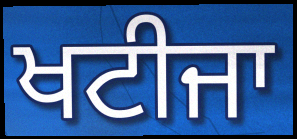
ਖਟੀਜਾ